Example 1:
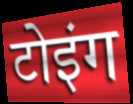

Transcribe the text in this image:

टोइंग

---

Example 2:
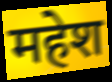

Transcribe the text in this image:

महेश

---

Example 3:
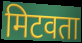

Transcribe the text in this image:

मिटवता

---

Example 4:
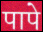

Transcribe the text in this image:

पापे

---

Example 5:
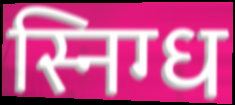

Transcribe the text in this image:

स्‍निग्ध